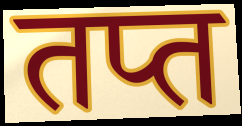
तप्त